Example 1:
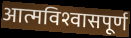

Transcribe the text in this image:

आत्मविश्वासपूर्ण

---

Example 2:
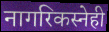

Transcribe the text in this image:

नागरिकस्नेही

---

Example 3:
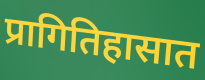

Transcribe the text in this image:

प्रागितिहासात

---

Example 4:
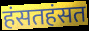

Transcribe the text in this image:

हंसतहंसत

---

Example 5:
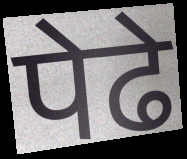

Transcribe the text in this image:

पेढे